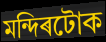
মন্দিৰটোক